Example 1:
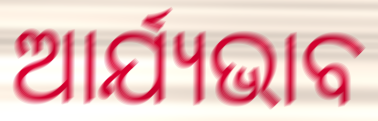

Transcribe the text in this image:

ଆର୍ଯ୍ୟଭାବ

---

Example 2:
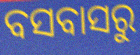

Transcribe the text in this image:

ବସବାସରୁ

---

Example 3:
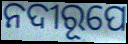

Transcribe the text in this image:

ନଦୀରୂପେ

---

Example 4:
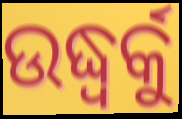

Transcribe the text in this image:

ଉଦ୍ଧ୍ୱର୍କୁ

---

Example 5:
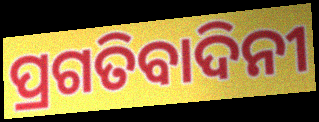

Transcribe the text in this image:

ପ୍ରଗତିବାଦିନୀ